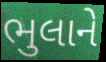
ભુલાને